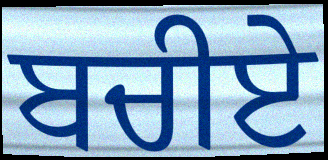
ਬਚੀਏ